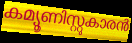
കമ്യൂണിസ്റ്റുകാരൻ